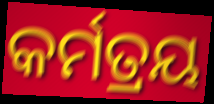
କର୍ମତ୍ରୟ